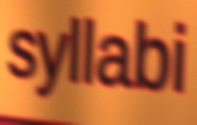
syllabi